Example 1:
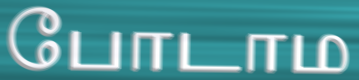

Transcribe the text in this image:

போடாம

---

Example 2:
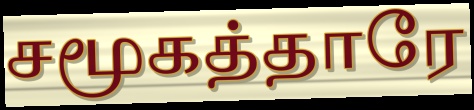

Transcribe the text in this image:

சமூகத்தாரே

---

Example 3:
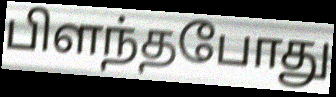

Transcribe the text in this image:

பிளந்தபோது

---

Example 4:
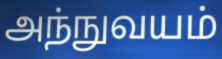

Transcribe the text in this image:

அந்நுவயம்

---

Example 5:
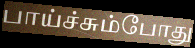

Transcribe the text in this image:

பாய்ச்சும்போது